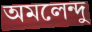
অমলেন্দু